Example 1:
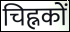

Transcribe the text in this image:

चिह्नकों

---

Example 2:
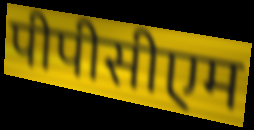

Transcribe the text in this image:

पीपीसीएम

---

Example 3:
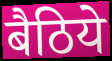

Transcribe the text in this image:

बैठिये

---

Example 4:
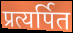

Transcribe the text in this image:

प्रत्यर्पित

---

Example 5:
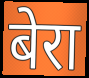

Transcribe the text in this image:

बेरा